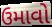
ઉમાવો